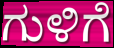
ಗುಳಿಗೆ